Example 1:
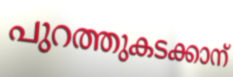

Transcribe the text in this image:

പുറത്തുകടക്കാന്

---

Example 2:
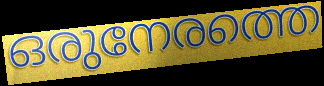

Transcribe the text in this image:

ഒരുനേരത്തെ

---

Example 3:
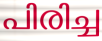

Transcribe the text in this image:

പിരിച്ച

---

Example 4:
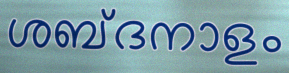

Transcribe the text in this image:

ശബ്ദനാളം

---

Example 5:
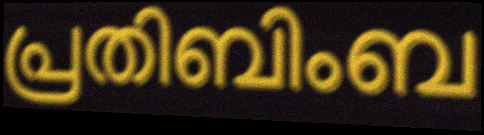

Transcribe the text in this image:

പ്രതിബിംബ